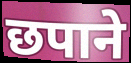
छपाने